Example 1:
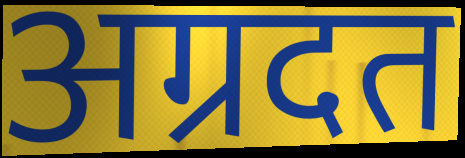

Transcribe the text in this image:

अग्रदत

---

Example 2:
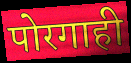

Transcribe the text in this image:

पोरगाही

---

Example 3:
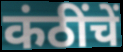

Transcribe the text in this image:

कंठींचें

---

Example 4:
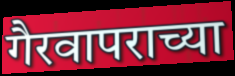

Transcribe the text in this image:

गैरवापराच्या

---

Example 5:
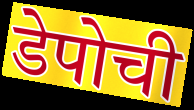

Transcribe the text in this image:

डेपोची